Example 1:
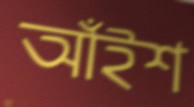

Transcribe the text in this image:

আঁইশ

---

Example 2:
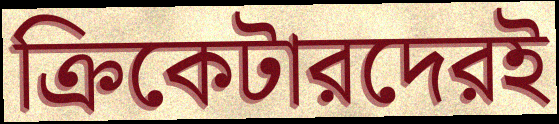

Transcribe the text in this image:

ক্রিকেটারদেরই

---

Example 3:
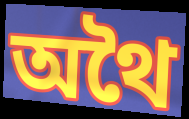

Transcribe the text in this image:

অথৈ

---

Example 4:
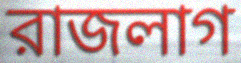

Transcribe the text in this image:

রাজলাগ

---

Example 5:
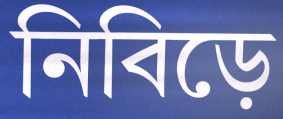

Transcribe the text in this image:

নিবিড়ে